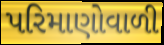
પરિમાણોવાળી